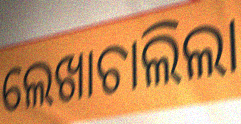
ଲେଖାଚାଲିଲା